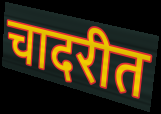
चादरीत